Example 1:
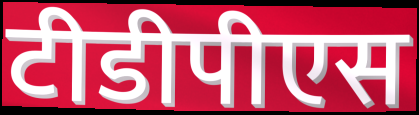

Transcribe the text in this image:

टीडीपीएस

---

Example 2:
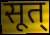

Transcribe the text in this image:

सूत्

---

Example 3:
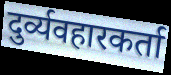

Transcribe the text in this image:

दुर्व्यवहारकर्ता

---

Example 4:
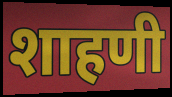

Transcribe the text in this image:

शाहणी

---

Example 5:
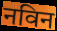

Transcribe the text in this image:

नविन